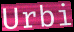
Urbi